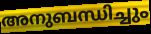
അനുബന്ധിച്ചും